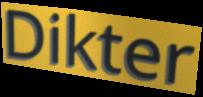
Dikter